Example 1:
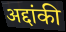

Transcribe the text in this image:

अद्दांकी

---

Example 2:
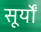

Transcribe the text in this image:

सूर्यों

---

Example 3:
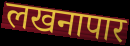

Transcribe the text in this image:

लखनापार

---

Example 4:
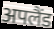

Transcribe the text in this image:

अपलैंड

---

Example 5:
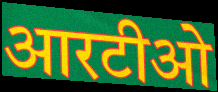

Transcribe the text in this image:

आरटीओ